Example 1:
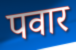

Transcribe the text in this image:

पवार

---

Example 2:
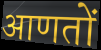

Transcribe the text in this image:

आणतों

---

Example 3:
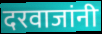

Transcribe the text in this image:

दरवाजांनी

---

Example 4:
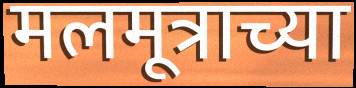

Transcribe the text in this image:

मलमूत्राच्या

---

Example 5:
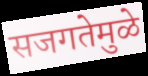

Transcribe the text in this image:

सजगतेमुळे